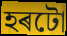
হৰটো